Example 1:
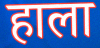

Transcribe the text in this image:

हाला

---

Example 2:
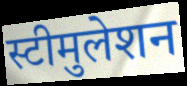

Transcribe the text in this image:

स्टीमुलेशन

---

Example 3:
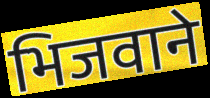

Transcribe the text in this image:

भिजवाने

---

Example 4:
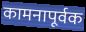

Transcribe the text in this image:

कामनापूर्वक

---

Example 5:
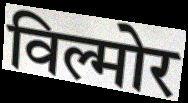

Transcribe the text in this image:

विल्मोर